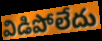
విడిపోలేదు